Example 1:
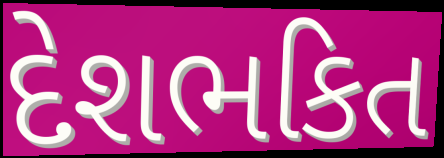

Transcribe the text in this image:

દેશભકિત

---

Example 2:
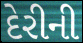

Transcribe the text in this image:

દેરીની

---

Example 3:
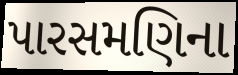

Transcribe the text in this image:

પારસમણિના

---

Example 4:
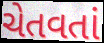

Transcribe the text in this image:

ચેતવતાં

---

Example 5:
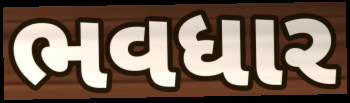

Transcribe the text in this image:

ભવધાર